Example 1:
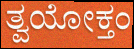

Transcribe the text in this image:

ತ್ವಯೋಕ್ತಂ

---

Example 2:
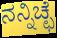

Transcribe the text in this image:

ನನ್ನಿಚ್ಛೆ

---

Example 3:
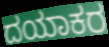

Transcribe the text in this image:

ದಯಾಕರ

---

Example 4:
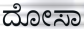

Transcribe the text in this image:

ದೋಸಾ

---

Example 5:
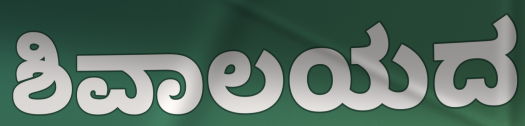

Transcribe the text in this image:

ಶಿವಾಲಯದ